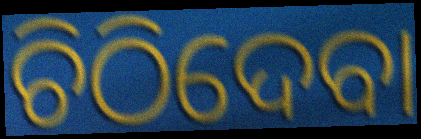
ଚିଠିଦେବା